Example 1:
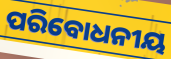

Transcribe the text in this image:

ପରିବୋଧନୀୟ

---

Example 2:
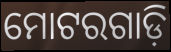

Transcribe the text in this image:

ମୋଟରଗାଡ଼ି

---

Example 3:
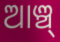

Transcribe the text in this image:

ଆଞ୍ଚ୍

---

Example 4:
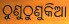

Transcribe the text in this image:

ଠୁଣୁଠୁଣୁକିଆ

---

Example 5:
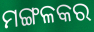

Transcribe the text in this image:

ମଙ୍ଗଳକର